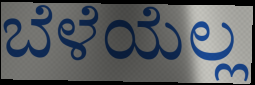
ಬೆಳೆಯೆಲ್ಲ